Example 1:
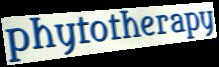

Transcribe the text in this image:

phytotherapy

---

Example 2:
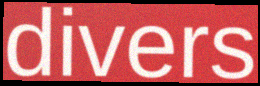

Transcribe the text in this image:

divers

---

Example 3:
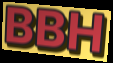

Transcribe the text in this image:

BBH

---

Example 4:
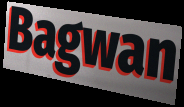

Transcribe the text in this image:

Bagwan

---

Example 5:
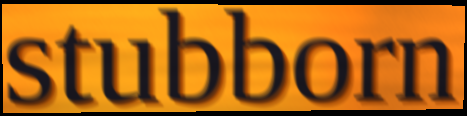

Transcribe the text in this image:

stubborn